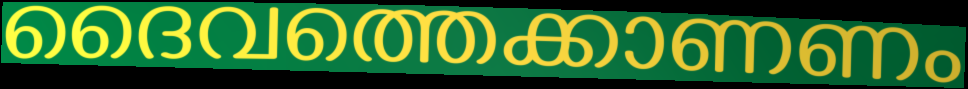
ദൈവത്തെക്കാണണം